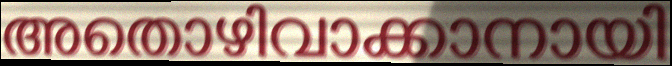
അതൊഴിവാക്കാനായി